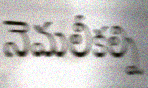
నెమలీకల్ని